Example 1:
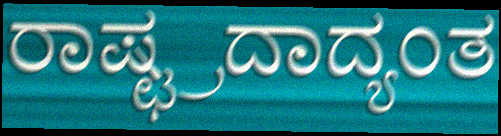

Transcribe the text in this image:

ರಾಷ್ಟ್ರದಾದ್ಯಂತ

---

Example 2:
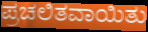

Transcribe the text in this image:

ಪ್ರಚಲಿತವಾಯಿತು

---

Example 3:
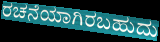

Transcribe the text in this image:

ರಚನೆಯಾಗಿರಬಹುದು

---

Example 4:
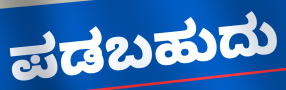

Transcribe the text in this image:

ಪಡಬಹುದು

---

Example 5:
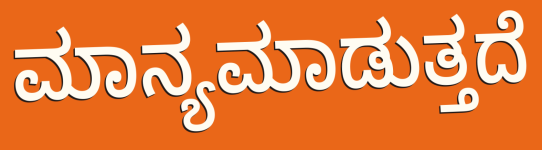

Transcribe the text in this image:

ಮಾನ್ಯಮಾಡುತ್ತದೆ